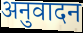
अनुवादन